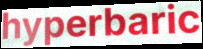
hyperbaric